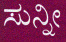
ಸುನ್ನೀ